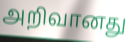
அறிவானது